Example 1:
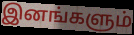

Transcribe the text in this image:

இனங்களும்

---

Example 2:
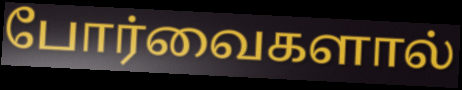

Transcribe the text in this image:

போர்வைகளால்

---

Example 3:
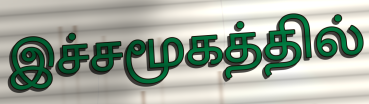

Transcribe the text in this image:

இச்சமூகத்தில்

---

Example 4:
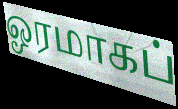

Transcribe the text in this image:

ஓரமாகப்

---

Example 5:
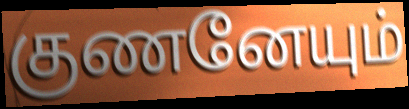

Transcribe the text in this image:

குணனேயும்